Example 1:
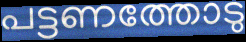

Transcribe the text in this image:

പട്ടണത്തോടു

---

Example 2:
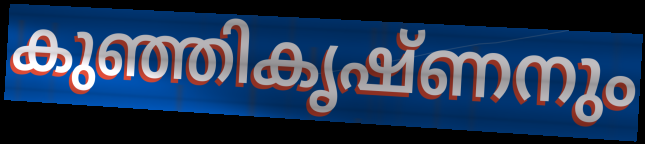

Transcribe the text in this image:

കുഞ്ഞികൃഷ്ണനും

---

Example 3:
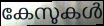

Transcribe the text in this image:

കേസുകൾ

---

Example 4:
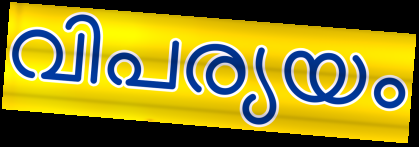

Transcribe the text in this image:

വിപര്യയം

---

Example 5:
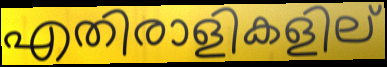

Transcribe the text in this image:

എതിരാളികളില്